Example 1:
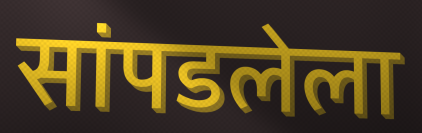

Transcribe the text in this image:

सांपडलेला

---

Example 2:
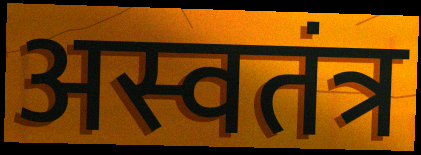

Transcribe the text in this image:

अस्वतंत्र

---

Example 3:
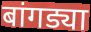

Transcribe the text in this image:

बांगड्या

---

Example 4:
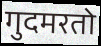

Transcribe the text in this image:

गुदमरतो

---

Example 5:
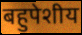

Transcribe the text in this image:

बहुपेशीय